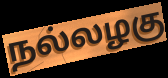
நல்லழகு